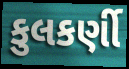
કુલકર્ણી